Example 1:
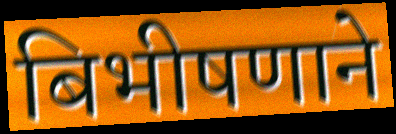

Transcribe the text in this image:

बिभीषणाने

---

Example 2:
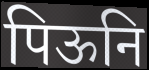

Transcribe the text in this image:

पिऊनि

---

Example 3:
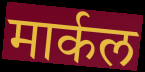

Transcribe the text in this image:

मार्कल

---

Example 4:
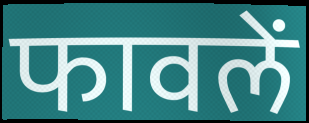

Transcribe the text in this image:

फावलें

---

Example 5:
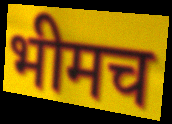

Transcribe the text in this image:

भीमच